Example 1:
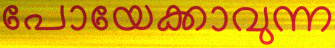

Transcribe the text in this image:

പോയേക്കാവുന്ന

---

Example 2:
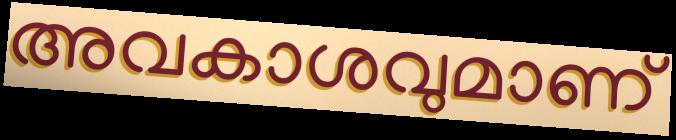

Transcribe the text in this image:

അവകാശവുമാണ്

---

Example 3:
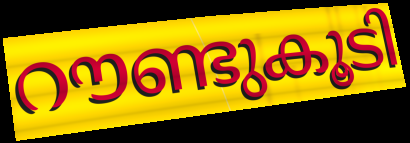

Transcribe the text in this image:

റൗണ്ടുകൂടി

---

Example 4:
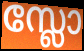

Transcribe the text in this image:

സ്ലോ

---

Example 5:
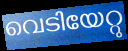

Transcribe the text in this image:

വെടിയേറ്റു